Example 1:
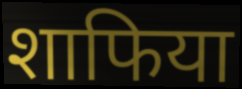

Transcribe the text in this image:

शाफिया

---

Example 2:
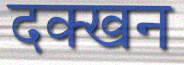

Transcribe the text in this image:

दक्खन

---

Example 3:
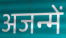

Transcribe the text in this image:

अजन्में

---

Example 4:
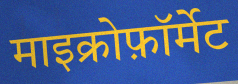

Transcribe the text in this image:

माइक्रोफ़ॉर्मेट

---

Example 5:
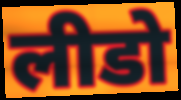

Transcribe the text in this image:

लीडो